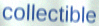
collectible